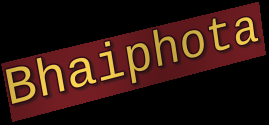
Bhaiphota